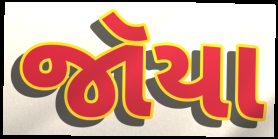
જૉયા